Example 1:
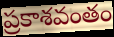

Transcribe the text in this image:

ప్రకాశవంతం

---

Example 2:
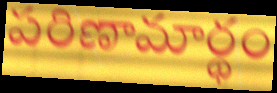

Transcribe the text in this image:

పరిణామార్థం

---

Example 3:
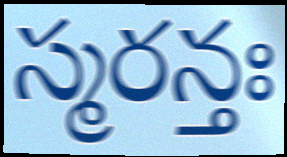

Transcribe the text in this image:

స్మరన్తః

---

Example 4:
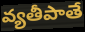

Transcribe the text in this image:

వ్యతీపాతే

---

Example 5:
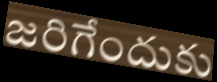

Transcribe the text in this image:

జరిగేందుకు